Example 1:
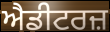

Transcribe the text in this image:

ਐਡੀਟਰਜ਼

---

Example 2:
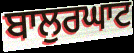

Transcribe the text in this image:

ਬਾਲੁਰਘਾਟ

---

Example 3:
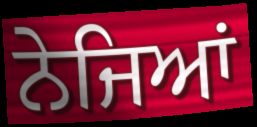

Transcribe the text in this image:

ਨੇਜਿਆਂ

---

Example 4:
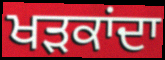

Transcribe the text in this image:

ਖੜਕਾਂਦਾ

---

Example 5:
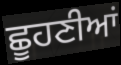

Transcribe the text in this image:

ਛੂਹਣੀਆਂ